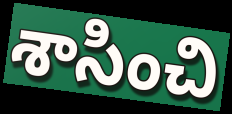
శాసించి